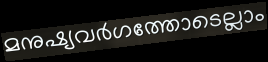
മനുഷ്യവർഗത്തോടെല്ലാം